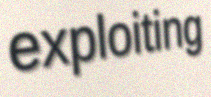
exploiting